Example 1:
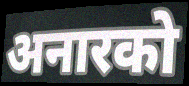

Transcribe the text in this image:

अनारको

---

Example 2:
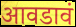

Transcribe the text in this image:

आवडावं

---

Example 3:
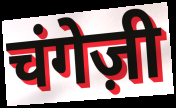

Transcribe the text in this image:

चंगेज़ी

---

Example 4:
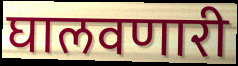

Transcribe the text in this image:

घालवणारी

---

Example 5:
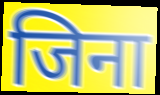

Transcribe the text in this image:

जिना